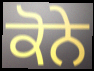
ਕੋਨੇ